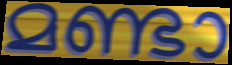
മണ്ടാ